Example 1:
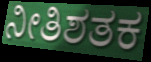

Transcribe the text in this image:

ನೀತಿಶತಕ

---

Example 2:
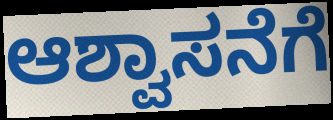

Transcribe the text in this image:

ಆಶ್ವಾಸನೆಗೆ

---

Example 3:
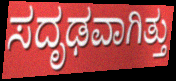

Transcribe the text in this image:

ಸದೃಢವಾಗಿತ್ತು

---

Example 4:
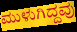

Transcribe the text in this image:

ಮುಳುಗಿದ್ದವು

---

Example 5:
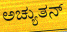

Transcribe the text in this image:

ಅಚ್ಯುತನ್